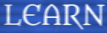
LEARN